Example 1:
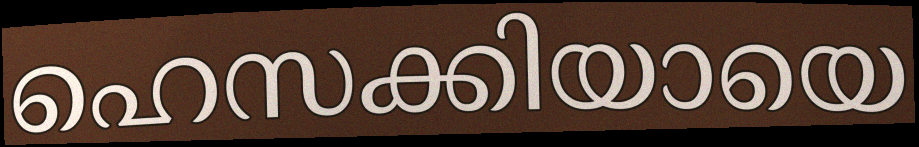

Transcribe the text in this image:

ഹെസക്കിയായെ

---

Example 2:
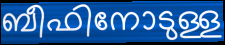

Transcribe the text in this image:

ബീഫിനോടുള്ള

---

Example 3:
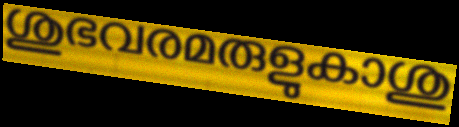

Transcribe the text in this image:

ശുഭവരമരുളുകാശു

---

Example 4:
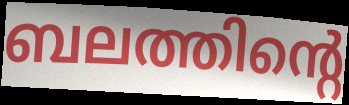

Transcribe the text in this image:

ബലത്തിന്റെ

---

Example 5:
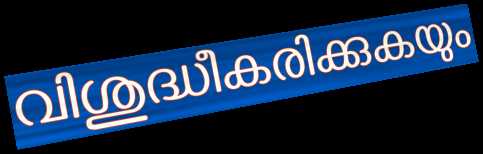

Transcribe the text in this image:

വിശുദ്ധീകരിക്കുകയും